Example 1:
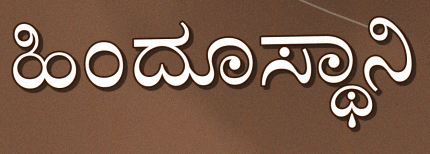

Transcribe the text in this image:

ಹಿಂದೂಸ್ಥಾನಿ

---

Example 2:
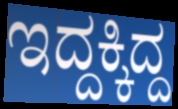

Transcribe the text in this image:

ಇದ್ದಕ್ಕಿದ್ದ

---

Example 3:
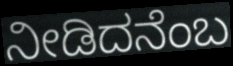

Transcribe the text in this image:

ನೀಡಿದನೆಂಬ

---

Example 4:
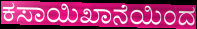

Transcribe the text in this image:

ಕಸಾಯಿಖಾನೆಯಿಂದ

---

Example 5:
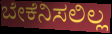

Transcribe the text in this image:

ಬೇಕೆನಿಸಲಿಲ್ಲ